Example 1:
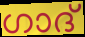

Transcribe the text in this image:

ഗാദ്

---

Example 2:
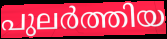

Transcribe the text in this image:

പുലർത്തിയ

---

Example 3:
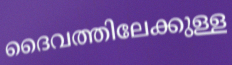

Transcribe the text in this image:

ദൈവത്തിലേക്കുള്ള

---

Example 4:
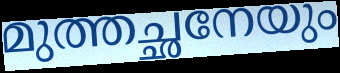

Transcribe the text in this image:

മുത്തച്ഛനേയും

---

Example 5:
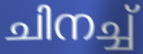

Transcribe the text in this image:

ചിനച്ച്